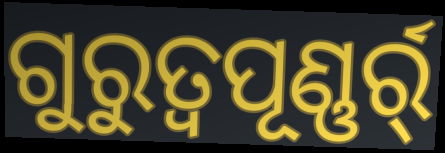
ଗୁରୁତ୍ୱପୂଣ୍ଣର୍ର୍